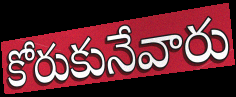
కోరుకునేవారు